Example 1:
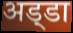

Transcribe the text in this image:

अड्‍डा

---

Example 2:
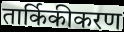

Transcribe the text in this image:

तार्किकीकरण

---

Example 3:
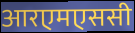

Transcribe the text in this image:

आरएमएससी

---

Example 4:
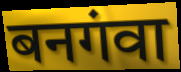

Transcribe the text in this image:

बनगंवा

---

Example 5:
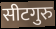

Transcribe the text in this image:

सीटगुरु